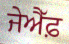
ਜੇਐੱਫ਼